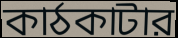
কাঠকাটার